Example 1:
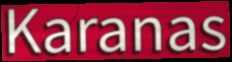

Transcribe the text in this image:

Karanas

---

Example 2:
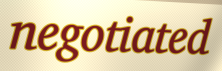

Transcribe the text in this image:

negotiated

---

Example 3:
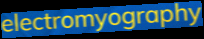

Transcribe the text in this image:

electromyography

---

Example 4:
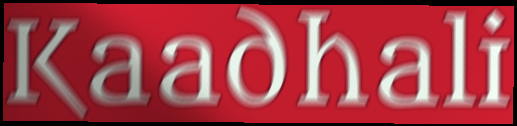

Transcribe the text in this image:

Kaadhali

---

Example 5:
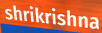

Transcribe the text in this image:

shrikrishna